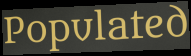
Populated